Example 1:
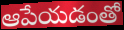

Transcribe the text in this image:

ఆపేయడంతో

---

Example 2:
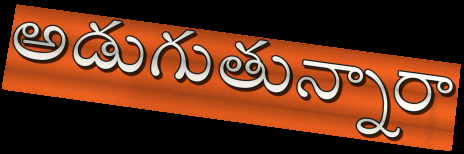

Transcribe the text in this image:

అడుగుతున్నారా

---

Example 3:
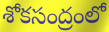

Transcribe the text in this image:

శోకసంద్రంలో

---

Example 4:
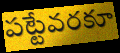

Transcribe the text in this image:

పట్టేవరకూ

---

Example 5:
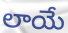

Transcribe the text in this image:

లాయే